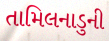
તામિલનાડુની